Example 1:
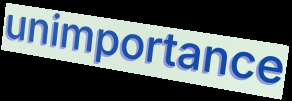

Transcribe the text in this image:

unimportance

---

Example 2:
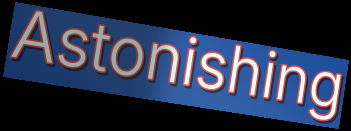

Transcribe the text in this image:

Astonishing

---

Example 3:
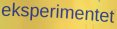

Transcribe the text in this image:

eksperimentet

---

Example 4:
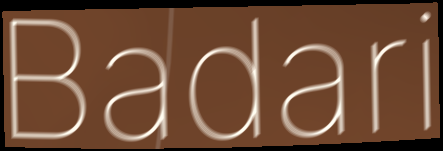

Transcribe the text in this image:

Badari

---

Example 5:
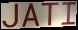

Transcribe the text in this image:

JATI